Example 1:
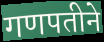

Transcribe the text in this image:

गणपतीने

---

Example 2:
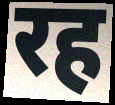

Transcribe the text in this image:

रह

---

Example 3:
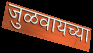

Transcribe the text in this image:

जुळवायच्या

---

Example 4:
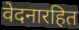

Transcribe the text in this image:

वेदनारहित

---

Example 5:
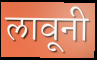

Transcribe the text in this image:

लावूनी